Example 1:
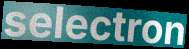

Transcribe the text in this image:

selectron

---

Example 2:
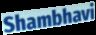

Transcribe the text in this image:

Shambhavi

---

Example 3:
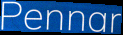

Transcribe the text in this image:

Pennar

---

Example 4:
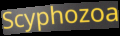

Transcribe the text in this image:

Scyphozoa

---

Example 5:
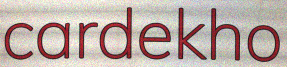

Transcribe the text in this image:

cardekho